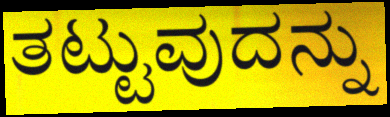
ತಟ್ಟುವುದನ್ನು